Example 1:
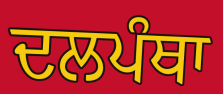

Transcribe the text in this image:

ਦਲਪੰਥਾ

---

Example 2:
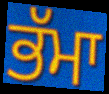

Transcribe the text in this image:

ਭੱਮਾ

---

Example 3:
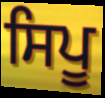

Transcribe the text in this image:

ਸਿਪੂ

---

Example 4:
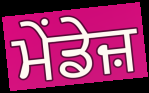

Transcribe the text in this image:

ਮੇਂਡੇਜ਼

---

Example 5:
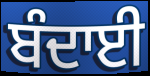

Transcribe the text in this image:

ਬੰਦਾਈ